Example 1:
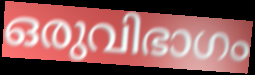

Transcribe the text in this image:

ഒരുവിഭാഗം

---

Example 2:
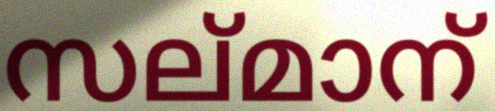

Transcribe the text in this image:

സല്മാന്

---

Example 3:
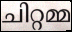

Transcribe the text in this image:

ചിറ്റമ്മ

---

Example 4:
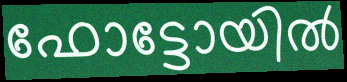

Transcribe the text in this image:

ഫോട്ടോയിൽ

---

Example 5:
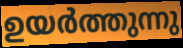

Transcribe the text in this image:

ഉയർത്തുന്നു